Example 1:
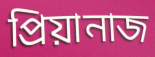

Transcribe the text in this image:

প্রিয়ানাজ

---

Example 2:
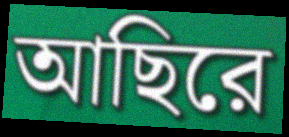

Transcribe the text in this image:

আছিরে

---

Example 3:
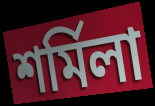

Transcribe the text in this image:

শর্মিলা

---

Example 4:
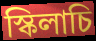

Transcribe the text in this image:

স্কিলাচি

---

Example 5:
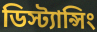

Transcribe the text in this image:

ডিস্ট্যান্সিং